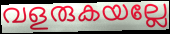
വളരുകയല്ലേ